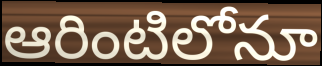
ఆరింటిలోనూ